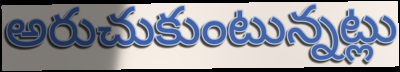
అరుచుకుంటున్నట్లు